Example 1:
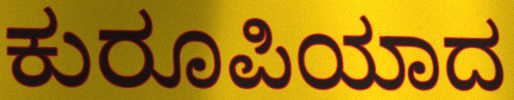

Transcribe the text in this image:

ಕುರೂಪಿಯಾದ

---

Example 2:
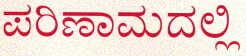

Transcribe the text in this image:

ಪರಿಣಾಮದಲ್ಲಿ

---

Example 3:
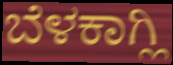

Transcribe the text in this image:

ಬೆಳಕಾಗ್ಲಿ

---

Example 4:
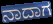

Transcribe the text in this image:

ನಾದಾಗ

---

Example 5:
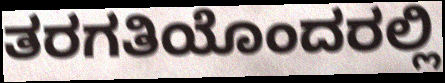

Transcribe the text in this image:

ತರಗತಿಯೊಂದರಲ್ಲಿ